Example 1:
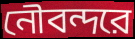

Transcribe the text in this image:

নৌবন্দরে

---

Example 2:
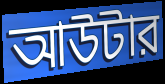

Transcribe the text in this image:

আউটার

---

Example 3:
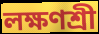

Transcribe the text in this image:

লক্ষণশ্রী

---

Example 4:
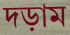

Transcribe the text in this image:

দড়াম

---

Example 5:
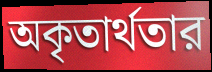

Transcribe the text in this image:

অকৃতার্থতার